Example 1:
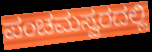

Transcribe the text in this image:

ಪಂಚಮಸ್ವರದಲ್ಲಿ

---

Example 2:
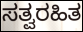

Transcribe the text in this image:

ಸತ್ವರಹಿತ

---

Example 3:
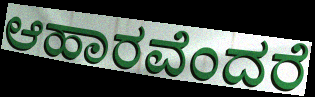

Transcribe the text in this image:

ಆಹಾರವೆಂದರೆ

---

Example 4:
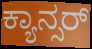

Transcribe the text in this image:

ಕ್ಯಾನ್ಸರ್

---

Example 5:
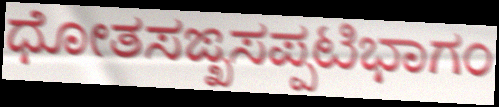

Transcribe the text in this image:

ಧೋತಸಙ್ಖಸಪ್ಪಟಿಭಾಗಂ